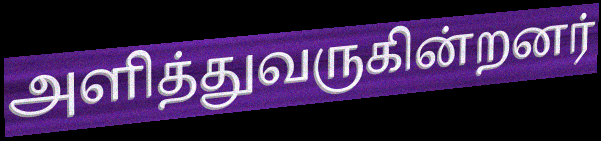
அளித்துவருகின்றனர்